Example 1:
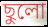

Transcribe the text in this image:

ছুলো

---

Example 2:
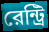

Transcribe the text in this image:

রেন্ট্রি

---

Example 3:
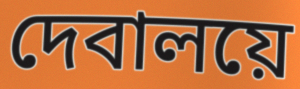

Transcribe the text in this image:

দেবালয়ে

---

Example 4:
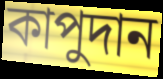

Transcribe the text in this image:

কাপুদান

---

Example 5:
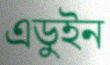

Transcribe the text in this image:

এডুইন